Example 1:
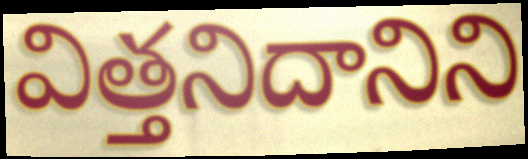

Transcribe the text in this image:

విత్తనిదానిని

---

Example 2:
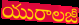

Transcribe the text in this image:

యురాలజీ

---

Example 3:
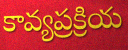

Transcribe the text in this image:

కావ్యప్రక్రియ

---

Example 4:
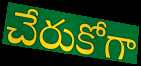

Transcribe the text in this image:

చేరుకోగా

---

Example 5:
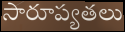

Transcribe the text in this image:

సారూప్యతలు